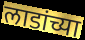
लाडांच्या